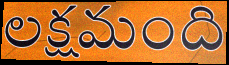
లక్షమంది